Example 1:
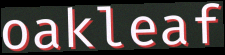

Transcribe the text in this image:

oakleaf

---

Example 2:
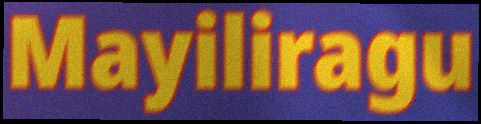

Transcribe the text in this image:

Mayiliragu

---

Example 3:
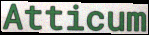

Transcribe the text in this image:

Atticum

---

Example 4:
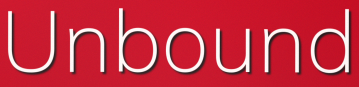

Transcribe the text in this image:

Unbound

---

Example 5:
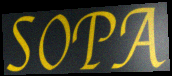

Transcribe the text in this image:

SOPA